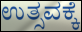
ಉತ್ಸವಕ್ಕೆ